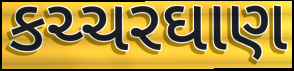
કચ્ચરઘાણ